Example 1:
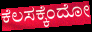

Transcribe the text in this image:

ಕೆಲಸಕ್ಕೆಂದೋ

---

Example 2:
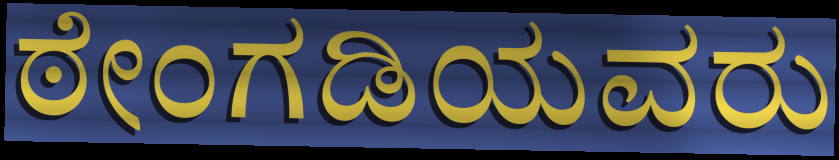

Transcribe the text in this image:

ಠೇಂಗಡಿಯವರು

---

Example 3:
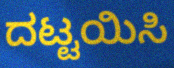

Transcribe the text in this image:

ದಟ್ಟಯಿಸಿ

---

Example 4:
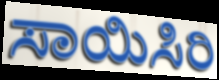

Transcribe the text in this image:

ಸಾಯಿಸಿರಿ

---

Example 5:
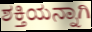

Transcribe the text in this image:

ಶಕ್ತಿಯನ್ನಾಗಿ